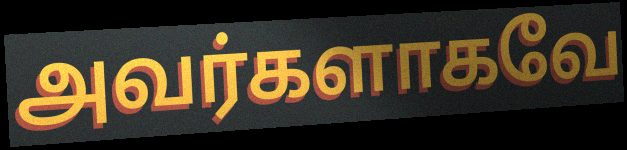
அவர்களாகவே